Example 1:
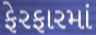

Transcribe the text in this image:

ફેરફારમાં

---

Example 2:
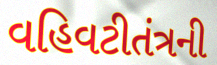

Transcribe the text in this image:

વહિવટીતંત્રની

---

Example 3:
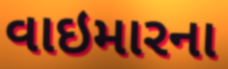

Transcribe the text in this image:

વાઇમારના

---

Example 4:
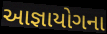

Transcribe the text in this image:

આજ્ઞાયોગના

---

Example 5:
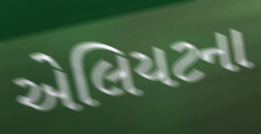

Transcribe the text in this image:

એલિયટના